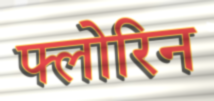
फ्लोरिन